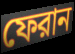
ফেরান